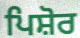
ਪਿਸ਼ੋਰ